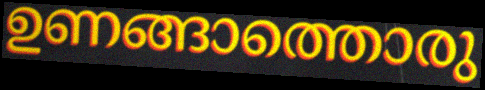
ഉണങ്ങാത്തൊരു